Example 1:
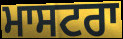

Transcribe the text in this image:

ਮਾਸਟਰਾ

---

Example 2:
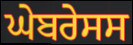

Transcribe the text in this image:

ਘੇਬਰੇਸਸ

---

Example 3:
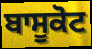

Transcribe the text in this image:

ਬਾਸੂਕੋਟ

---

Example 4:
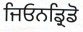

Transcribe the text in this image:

ਜਿਓਨਡ੍ਰਿਡੋ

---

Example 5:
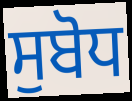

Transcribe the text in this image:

ਸੁਬੋਧ